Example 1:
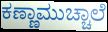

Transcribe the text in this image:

ಕಣ್ಣಾಮುಚ್ಚಾಲೆ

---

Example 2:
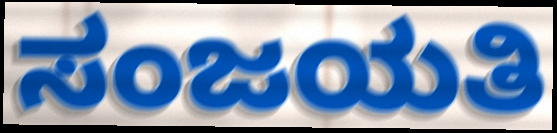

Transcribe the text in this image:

ಸಂಜಯತಿ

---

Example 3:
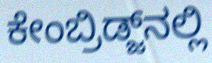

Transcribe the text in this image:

ಕೇಂಬ್ರಿಡ್ಜ್‌ನಲ್ಲಿ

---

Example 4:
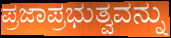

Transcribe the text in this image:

ಪ್ರಜಾಪ್ರಭುತ್ವವನ್ನು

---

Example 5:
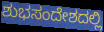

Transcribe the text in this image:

ಶುಭಸಂದೇಶದಲ್ಲಿ